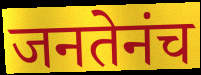
जनतेनंच